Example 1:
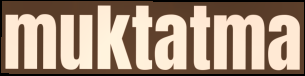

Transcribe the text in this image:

muktatma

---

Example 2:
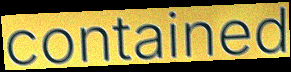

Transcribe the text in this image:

contained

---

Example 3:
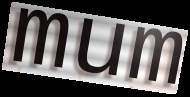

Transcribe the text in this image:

mum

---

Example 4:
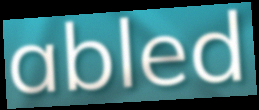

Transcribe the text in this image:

abled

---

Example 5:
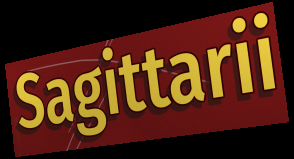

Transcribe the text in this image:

Sagittarii